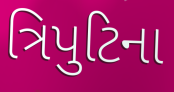
ત્રિપુટિના